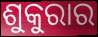
ଶୁକୁରାର